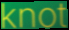
knot